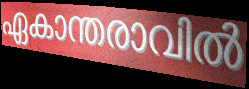
ഏകാന്തരാവിൽ